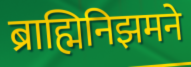
ब्राह्मिनिझमने